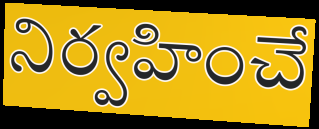
నిర్వహించే